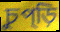
চুপ্‌ড়ি